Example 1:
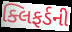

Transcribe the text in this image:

ક્લિફર્ડની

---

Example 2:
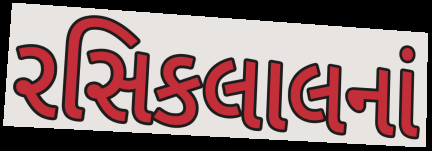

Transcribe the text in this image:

રસિકલાલનાં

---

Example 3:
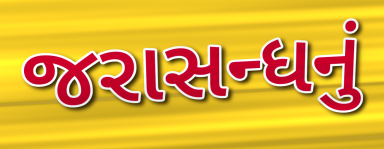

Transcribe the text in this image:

જરાસન્ધનું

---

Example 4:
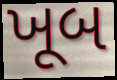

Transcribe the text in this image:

ખૂબ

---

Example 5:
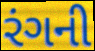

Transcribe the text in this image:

રંગની